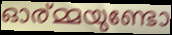
ഓര്മ്മയുണ്ടോ